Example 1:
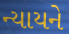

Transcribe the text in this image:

ન્યાયને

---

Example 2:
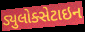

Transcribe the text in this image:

ડ્યુલોક્સેટાઇન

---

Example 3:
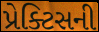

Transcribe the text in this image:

પ્રેક્ટિસની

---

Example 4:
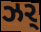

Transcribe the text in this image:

ઝર્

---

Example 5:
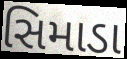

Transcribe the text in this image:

સિમાડા